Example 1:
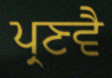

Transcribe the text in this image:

ਪ੍ਰਣਵੈ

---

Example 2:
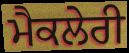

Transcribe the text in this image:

ਮੈਕਲੇਰੀ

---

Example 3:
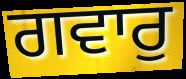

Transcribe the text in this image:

ਗਵਾਰੁ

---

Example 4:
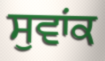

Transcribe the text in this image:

ਸੁਵਾਂਕ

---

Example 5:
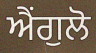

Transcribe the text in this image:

ਐਂਗੁਲੋ